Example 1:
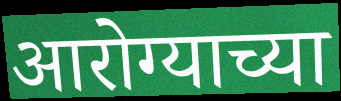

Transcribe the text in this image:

आरोग्याच्या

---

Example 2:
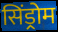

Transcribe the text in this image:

सिंड्रोम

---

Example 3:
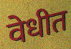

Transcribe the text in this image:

वेधीत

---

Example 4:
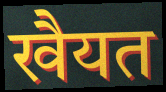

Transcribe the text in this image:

खैयत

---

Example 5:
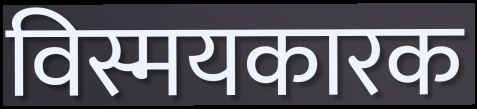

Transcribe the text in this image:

विस्मयकारक